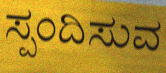
ಸ್ಪಂದಿಸುವ